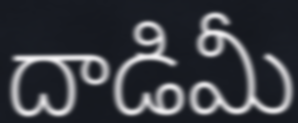
దాడిమీ